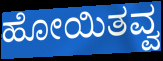
ಹೋಯಿತವ್ವ